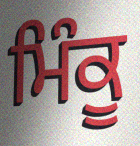
ਮਿੰਕੂ